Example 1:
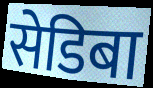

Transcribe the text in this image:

सेडिबा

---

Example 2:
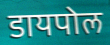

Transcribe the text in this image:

डायपोल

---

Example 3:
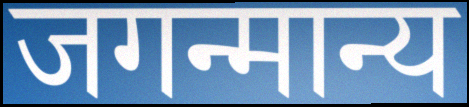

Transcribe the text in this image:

जगन्मान्य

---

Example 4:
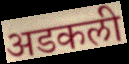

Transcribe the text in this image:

अडकली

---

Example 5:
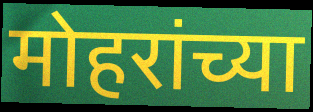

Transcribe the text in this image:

मोहरांच्या